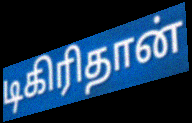
டிகிரிதான்